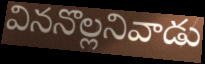
విననొల్లనివాడు